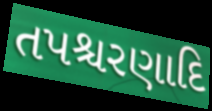
તપશ્ચરણાદિ